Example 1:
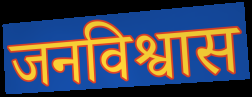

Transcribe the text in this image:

जनविश्वास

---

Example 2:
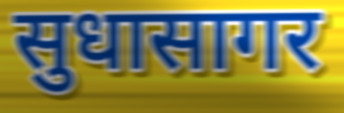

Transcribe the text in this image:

सुधासागर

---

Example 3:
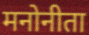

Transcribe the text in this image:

मनोनीता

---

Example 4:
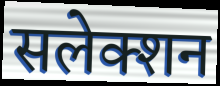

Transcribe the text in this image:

सलेक्शन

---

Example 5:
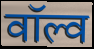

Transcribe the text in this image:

वॉल्व